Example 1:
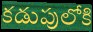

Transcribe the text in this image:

కడుపులోకి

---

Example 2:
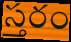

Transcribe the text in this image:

స్తరం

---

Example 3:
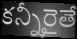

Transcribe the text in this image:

కన్నీరైతే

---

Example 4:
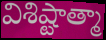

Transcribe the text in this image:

విశిష్టాత్మా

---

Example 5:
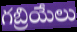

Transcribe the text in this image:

గబ్రియేలు